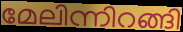
മേലിന്നിറങ്ങി